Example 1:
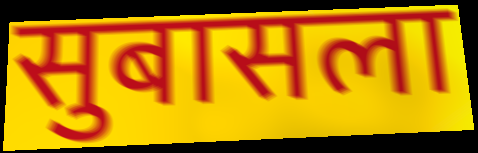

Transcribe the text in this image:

सुबासला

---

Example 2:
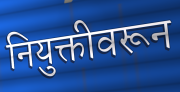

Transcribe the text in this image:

नियुक्तीवरून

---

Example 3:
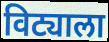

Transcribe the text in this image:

विट्याला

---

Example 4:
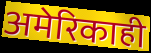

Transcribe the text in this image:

अमेरिकाही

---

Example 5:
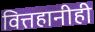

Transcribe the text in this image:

वित्तहानीही